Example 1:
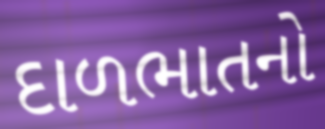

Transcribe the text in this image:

દાળભાતનો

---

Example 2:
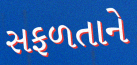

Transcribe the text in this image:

સફળતાને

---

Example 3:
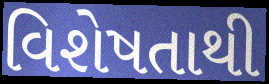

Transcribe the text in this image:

વિશેષતાથી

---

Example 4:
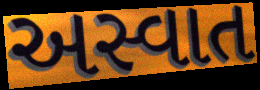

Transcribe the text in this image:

અસ્વાત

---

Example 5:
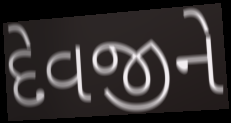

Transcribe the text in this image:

દેવજીને